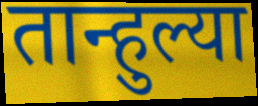
तान्हुल्या